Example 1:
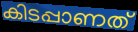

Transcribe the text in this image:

കിടപ്പാണത്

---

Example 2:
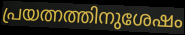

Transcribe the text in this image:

പ്രയത്നത്തിനുശേഷം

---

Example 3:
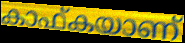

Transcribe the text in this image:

കാഫ്കയാണ്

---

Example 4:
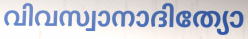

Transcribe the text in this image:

വിവസ്വാനാദിത്യോ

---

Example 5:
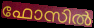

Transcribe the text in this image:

ഫോസിൽ